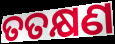
ତତକ୍ଷଣ